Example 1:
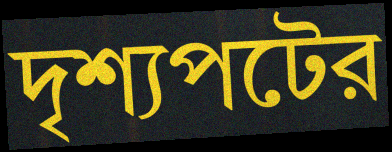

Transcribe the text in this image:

দৃশ্যপটের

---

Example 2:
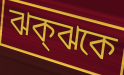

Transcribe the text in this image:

ঝক্‌ঝকে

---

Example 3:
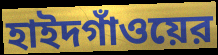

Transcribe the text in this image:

হাইদগাঁওয়ের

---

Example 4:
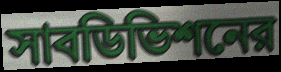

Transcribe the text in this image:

সাবডিভিশনের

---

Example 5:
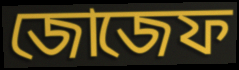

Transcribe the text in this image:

জোজেফ